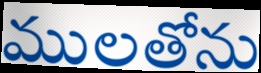
ములతోను